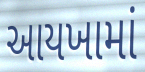
આયખામાં